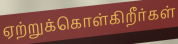
ஏற்றுக்கொள்கிறீர்கள்